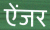
ऐंजर